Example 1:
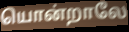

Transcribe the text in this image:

யொன்றாலே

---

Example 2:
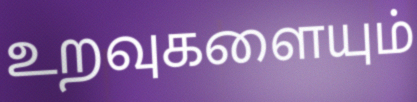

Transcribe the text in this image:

உறவுகளையும்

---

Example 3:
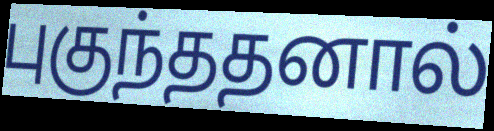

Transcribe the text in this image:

புகுந்ததனால்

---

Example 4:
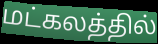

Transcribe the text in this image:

மட்கலத்தில்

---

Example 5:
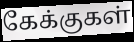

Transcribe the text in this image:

கேக்குகள்